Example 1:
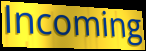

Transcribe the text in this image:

Incoming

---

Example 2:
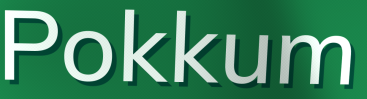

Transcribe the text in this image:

Pokkum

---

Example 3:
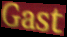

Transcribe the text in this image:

Gast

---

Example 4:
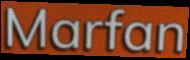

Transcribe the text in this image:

Marfan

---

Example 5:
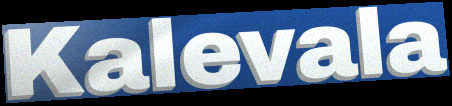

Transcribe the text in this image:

Kalevala